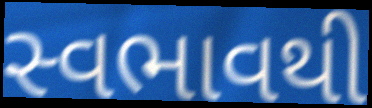
સ્વભાવથી